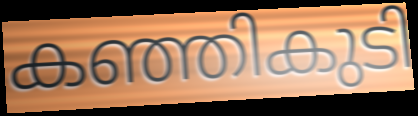
കഞ്ഞികുടി